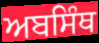
ਅਬਸਿੰਥ